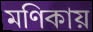
মণিকায়